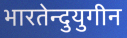
भारतेन्दुयुगीन